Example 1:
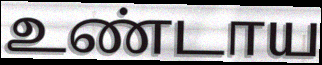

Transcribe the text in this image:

உண்டாய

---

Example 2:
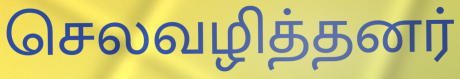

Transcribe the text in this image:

செலவழித்தனர்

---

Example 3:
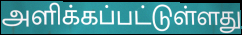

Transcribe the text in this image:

அளிக்கப்பட்டுள்ளது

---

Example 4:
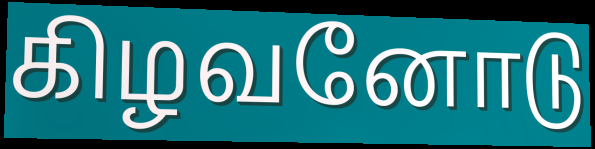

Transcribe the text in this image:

கிழவனோடு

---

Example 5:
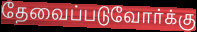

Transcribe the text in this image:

தேவைப்படுவோர்க்கு